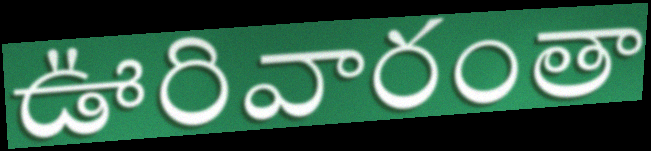
ఊరివారంతా